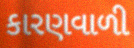
કારણવાળી